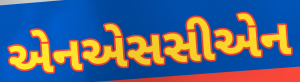
એનએસસીએન